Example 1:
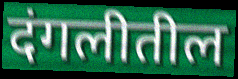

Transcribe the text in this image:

दंगलीतील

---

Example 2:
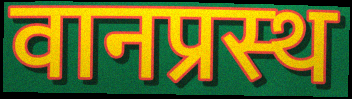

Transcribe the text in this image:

वानप्रस्थ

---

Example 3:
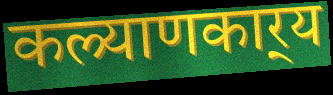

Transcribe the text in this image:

कल्याणकार्य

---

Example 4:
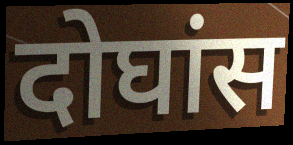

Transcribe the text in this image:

दोघांस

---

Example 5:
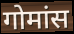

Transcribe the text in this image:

गोमांस